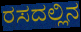
ರಸದಲ್ಲಿನ